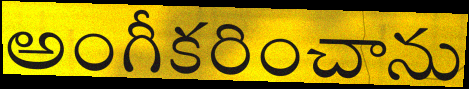
అంగీకరించాను